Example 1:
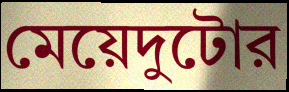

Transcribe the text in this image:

মেয়েদুটোর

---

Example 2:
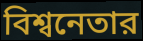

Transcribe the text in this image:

বিশ্বনেতার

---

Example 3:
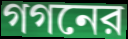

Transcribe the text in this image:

গগনের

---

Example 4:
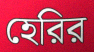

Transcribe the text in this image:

হেরির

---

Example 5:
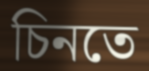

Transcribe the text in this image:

চিনতে